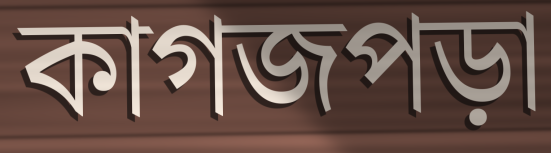
কাগজপড়া